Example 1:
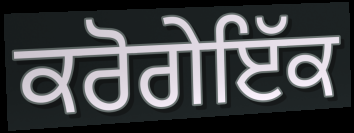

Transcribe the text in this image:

ਕਰੋਗੇਇੱਕ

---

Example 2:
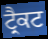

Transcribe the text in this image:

ਟ੍ਰੈਕਟ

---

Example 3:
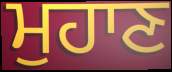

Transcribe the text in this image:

ਮੁਹਾਣ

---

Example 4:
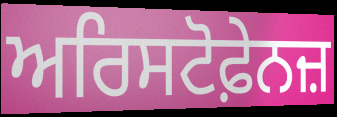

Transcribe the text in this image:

ਅਰਿਸਟੋਫ਼ੇਨਜ਼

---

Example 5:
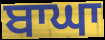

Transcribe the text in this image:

ਬਾਘਾ